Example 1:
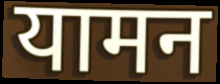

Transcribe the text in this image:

यामन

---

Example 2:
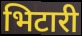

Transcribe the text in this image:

भिटारी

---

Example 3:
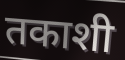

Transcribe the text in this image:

तकाशी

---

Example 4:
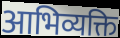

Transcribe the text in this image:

आभिव्यक्ति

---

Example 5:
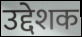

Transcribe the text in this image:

उद्देशक